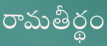
రామతీర్థం